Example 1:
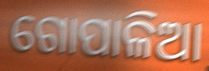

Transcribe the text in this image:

ଗୋପାଳିଆ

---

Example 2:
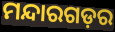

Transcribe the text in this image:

ମନ୍ଦାରଗଡ଼ର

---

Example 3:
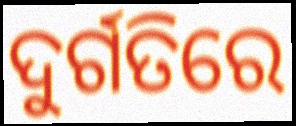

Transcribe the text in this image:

ଦୁର୍ଗତିରେ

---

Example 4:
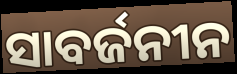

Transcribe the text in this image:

ସାବର୍ଜନୀନ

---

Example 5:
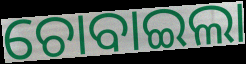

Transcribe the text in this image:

ଚୋବାଇଲା